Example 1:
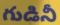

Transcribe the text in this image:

గుడినీ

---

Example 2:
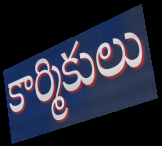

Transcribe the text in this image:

కార్మికులు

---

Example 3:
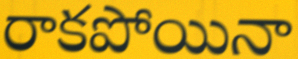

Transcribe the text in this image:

రాకపోయినా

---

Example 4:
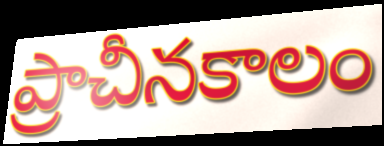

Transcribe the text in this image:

ప్రాచీనకాలం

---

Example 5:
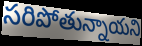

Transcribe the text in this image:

సరిపోతున్నాయని